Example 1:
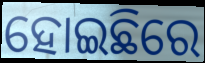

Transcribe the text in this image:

ହୋଇଛିରେ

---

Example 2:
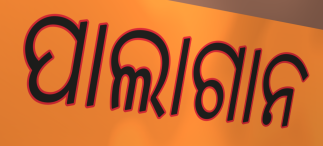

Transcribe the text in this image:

ପାଲାଗାନ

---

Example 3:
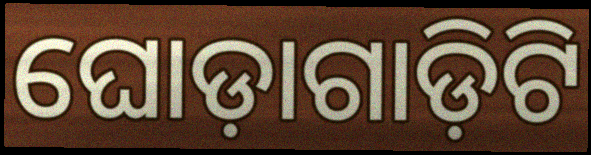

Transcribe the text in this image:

ଘୋଡ଼ାଗାଡ଼ିଟି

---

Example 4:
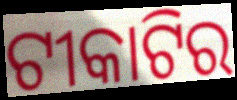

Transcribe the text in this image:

ଟୀକାଟିର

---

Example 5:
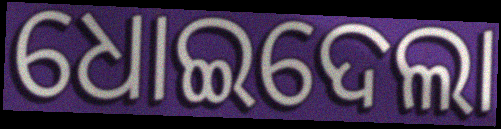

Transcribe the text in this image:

ଧୋଇଦେଲା